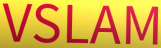
VSLAM